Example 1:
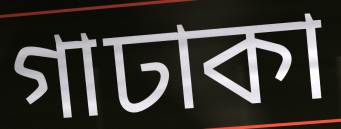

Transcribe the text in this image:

গাঢাকা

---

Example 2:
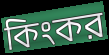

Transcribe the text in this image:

কিংকর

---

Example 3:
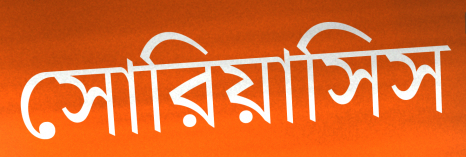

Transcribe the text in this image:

সোরিয়াসিস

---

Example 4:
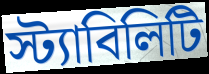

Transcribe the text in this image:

স্ট্যাবিলিটি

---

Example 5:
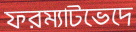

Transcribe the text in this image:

ফরম্যাটভেদে